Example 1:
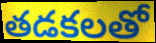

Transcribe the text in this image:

తడకలతో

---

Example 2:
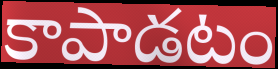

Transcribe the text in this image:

కాపాడటం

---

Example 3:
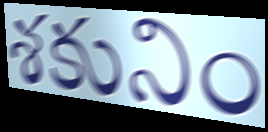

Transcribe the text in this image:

శకునిం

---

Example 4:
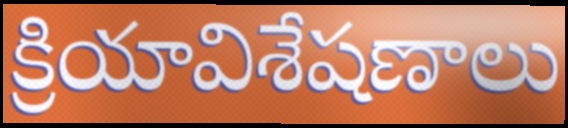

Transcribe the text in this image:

క్రియావిశేషణాలు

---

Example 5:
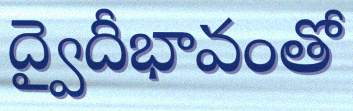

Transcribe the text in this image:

ద్వైదీభావంతో